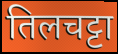
तिलचट्टा